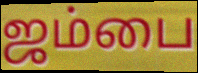
ஜம்பை